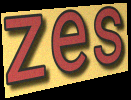
zes